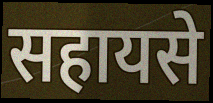
सहायसे